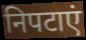
निपटाएं